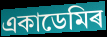
একাডেমিৰ